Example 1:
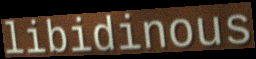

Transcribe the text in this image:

libidinous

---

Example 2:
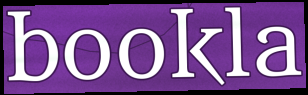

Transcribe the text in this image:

bookla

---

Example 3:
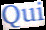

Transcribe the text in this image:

Qui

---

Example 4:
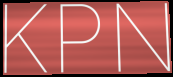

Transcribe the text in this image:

KPN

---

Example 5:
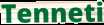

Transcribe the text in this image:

Tenneti